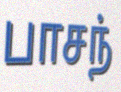
பாசந்